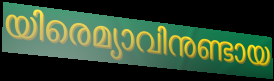
യിരെമ്യാവിനുണ്ടായ